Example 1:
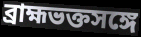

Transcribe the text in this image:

ব্রাহ্মভক্তসঙ্গে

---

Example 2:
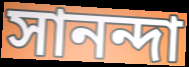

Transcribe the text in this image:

সানন্দা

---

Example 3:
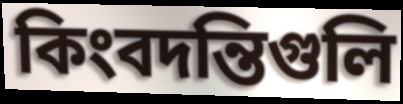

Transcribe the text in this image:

কিংবদন্তিগুলি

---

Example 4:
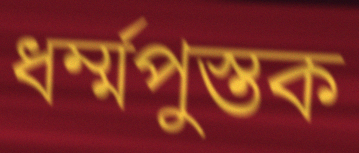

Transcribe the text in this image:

ধর্ম্মপুস্তক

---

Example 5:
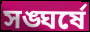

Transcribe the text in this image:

সঙ্ঘর্ষে